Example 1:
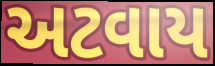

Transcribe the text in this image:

અટવાય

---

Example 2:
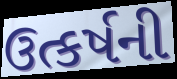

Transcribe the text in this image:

ઉત્કર્ષની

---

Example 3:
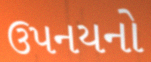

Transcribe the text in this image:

ઉપનયનો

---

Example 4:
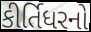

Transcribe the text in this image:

કીર્તિધરનો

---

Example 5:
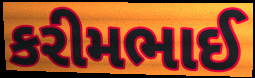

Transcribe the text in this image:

કરીમભાઈ